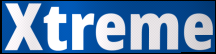
Xtreme